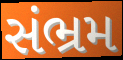
સંભ્રમ